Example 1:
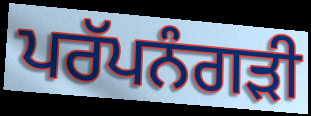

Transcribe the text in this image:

ਪਰੱਪਨੰਗੜੀ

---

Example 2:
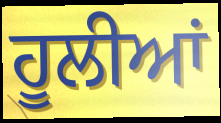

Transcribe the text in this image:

ਹੂਲੀਆਂ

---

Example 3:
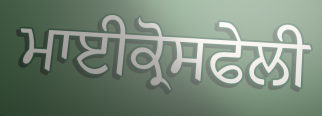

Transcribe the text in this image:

ਮਾਈਕ੍ਰੋਸਫੇਲੀ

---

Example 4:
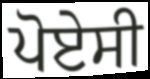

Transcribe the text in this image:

ਪੋਏਸੀ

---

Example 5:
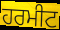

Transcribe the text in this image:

ਹਰਮੀਟ